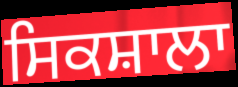
ਸਿਕਸ਼ਾਲਾ